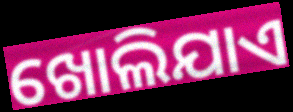
ଖୋଲିଯାଏ